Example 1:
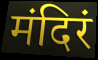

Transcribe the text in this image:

मंदिरं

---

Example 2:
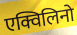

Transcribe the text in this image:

एक्विलिनो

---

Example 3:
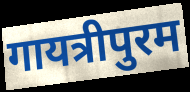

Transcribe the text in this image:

गायत्रीपुरम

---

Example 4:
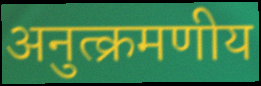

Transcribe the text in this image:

अनुत्क्रमणीय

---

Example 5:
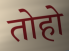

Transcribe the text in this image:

तोहो